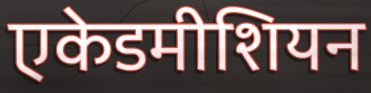
एकेडमीशियन